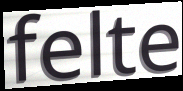
felte